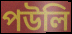
পউলি